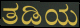
ತಡಿಯ